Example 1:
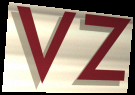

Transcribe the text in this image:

vz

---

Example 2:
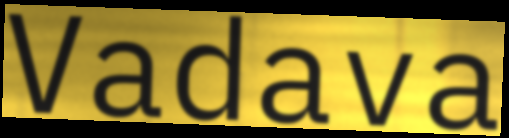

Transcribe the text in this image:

Vadava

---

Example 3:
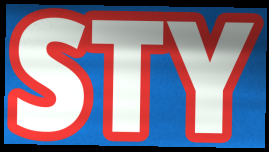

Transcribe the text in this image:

STY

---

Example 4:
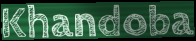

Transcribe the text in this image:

Khandoba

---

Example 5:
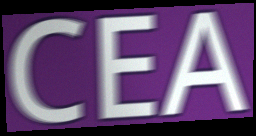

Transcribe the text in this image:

CEA